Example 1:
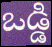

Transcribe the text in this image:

ఒడ్డి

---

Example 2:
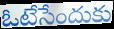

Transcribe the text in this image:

ఓటేసేందుకు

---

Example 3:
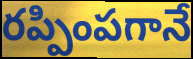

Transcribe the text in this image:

రప్పింపగానే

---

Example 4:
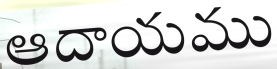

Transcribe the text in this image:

ఆదాయము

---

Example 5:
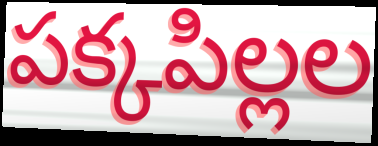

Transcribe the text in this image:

పక్కపిల్లల